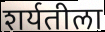
शर्यतीला